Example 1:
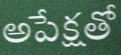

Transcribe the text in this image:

అపేక్షతో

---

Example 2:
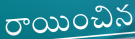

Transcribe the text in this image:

రాయించిన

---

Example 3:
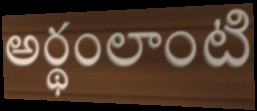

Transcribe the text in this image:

అర్థంలాంటి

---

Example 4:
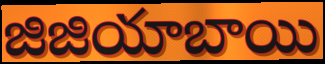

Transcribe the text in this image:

జిజియాబాయి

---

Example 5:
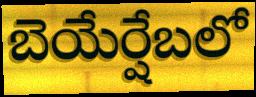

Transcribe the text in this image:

బెయేర్షేబలో